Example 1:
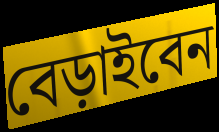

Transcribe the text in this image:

বেড়াইবেন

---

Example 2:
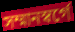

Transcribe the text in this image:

সম্মানস্বর্গে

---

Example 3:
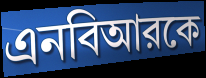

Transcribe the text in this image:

এনবিআরকে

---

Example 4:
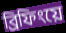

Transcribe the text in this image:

ব্রিফিংয়ে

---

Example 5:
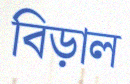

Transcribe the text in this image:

বিড়াল